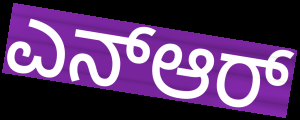
ಎನ್ಆರ್